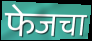
फेजचा